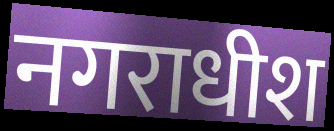
नगराधीश